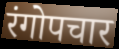
रंगोपचार